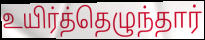
உயிர்த்தெழுந்தார்